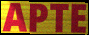
APTE